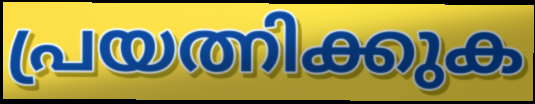
പ്രയത്നിക്കുക